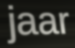
jaar